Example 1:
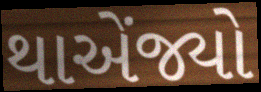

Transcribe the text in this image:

થાએંજ્યો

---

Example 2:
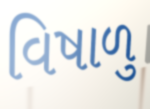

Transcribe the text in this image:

વિષાળુ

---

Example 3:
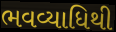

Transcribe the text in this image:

ભવવ્યાધિથી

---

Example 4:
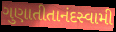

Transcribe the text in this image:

ગુણાતીતાનંદસ્વામી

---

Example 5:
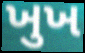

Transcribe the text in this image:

ખુખ